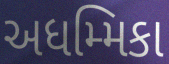
અધમ્મિકા